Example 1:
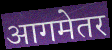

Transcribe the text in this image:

आगमेतर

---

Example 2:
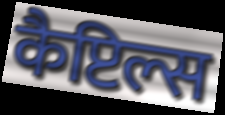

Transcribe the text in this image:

कैप्टिल्स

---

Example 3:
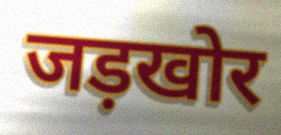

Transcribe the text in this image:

जड़खोर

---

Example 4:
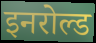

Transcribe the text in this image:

इनरोल्ड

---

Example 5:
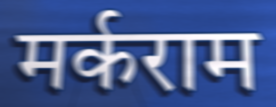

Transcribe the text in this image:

मर्कराम